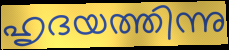
ഹൃദയത്തിന്നു